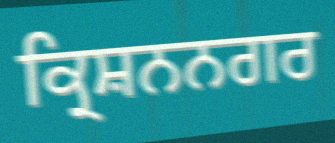
ਕ੍ਰਿਸ਼ਨਨਗਰ